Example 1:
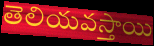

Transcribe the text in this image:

తెలియవస్తాయి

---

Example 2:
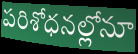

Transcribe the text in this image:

పరిశోధనల్లోనూ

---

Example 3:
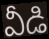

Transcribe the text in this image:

వీడి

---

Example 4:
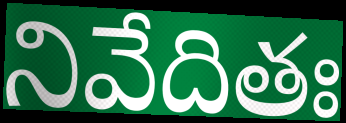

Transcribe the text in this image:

నివేదితః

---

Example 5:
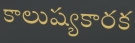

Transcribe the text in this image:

కాలుష్యకారక